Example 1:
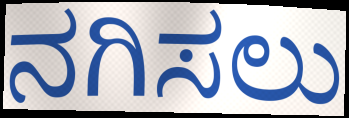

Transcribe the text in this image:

ನಗಿಸಲು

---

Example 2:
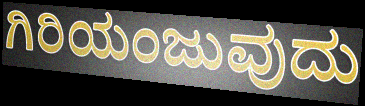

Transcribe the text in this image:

ಗಿರಿಯಂಜುವುದು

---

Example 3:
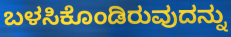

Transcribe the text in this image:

ಬಳಸಿಕೊಂಡಿರುವುದನ್ನು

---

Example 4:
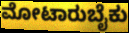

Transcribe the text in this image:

ಮೋಟಾರುಬೈಕು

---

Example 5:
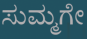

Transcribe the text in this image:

ಸುಮ್ಮಗೇ